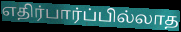
எதிர்பார்ப்பில்லாத